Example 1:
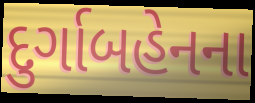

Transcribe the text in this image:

દુર્ગાબહેનના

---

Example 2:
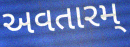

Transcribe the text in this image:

અવતારમ્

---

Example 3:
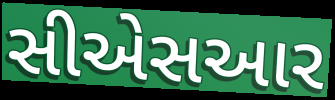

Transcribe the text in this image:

સીએસઆર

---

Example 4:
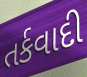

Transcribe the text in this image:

તર્કવાદી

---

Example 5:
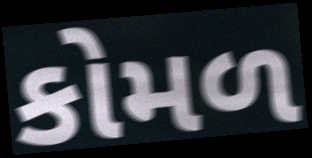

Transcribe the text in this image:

કોમળ